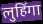
लुहिंगा